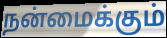
நன்மைக்கும்